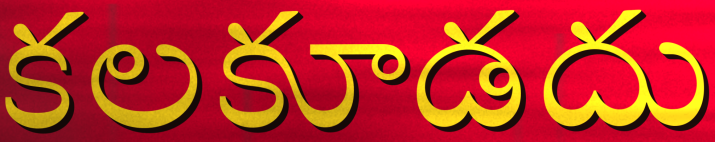
కలకూడదు